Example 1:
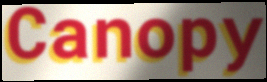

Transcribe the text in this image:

Canopy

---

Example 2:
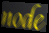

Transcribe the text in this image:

node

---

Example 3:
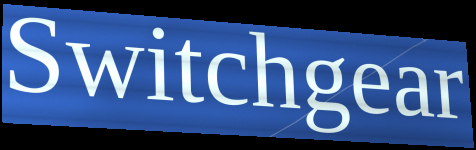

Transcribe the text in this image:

Switchgear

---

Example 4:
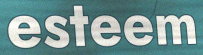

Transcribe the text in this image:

esteem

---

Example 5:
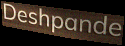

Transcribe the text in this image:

Deshpande